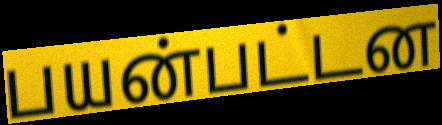
பயன்பட்டன